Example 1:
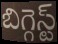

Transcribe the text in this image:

బిగ్గెస్ట్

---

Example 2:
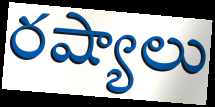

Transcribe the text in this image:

రష్యాలు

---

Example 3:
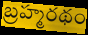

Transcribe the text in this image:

బ్రహ్మరథం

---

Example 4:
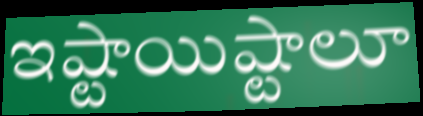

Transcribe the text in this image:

ఇష్టాయిష్టాలూ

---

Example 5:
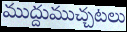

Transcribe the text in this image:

ముద్దుముచ్చటలు